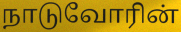
நாடுவோரின்